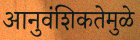
आनुवंशिकतेमुळे